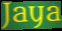
Jaya